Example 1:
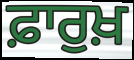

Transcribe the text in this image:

ਫ਼ਾਰੁਖ਼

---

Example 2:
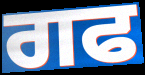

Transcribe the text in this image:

ਗਫ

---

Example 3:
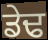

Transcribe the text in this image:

ਡੇਢ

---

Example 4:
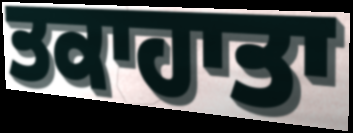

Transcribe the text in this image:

ਤਕਾਹਾਤਾ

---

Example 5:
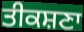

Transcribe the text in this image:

ਤੀਕਸ਼ਣਾ